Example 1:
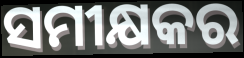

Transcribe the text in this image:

ସମୀକ୍ଷକର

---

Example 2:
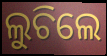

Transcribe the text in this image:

ଲୁଚିଲେ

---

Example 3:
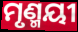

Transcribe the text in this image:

ମୃଣ୍ମୟୀ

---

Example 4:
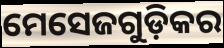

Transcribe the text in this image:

ମେସେଜଗୁଡ଼ିକର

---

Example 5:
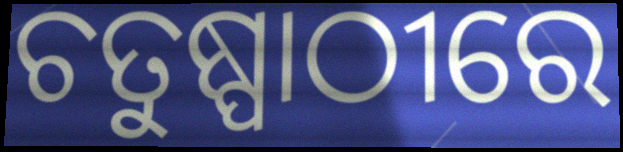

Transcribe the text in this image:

ଚତୁଷ୍ପାଠୀରେ